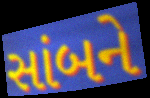
સાંબને